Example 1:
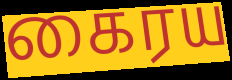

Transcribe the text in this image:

கைரய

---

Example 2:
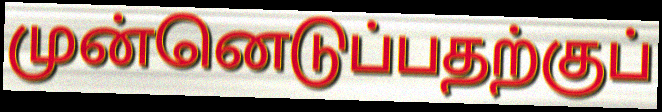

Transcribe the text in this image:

முன்னெடுப்பதற்குப்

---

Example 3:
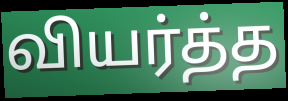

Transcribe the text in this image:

வியர்த்த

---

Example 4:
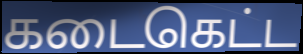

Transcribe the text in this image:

கடைகெட்ட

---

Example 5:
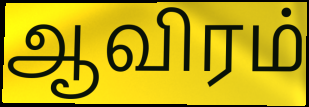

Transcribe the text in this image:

ஆவிரம்